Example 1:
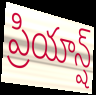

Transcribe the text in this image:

ప్రియాన్ష్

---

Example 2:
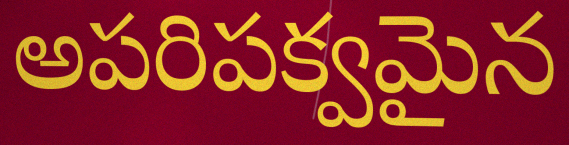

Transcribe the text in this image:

అపరిపక్వమైన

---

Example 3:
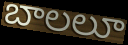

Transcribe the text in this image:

బాలలూ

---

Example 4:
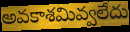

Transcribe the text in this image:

అవకాశమివ్వలేదు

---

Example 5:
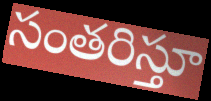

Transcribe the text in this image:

సంతరిస్తూ